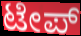
ಟೇಪ್